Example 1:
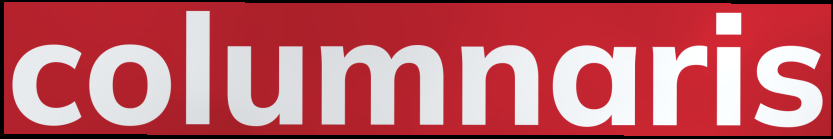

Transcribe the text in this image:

columnaris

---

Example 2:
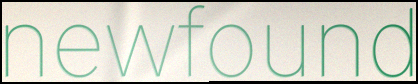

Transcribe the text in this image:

newfound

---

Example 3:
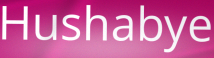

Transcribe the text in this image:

Hushabye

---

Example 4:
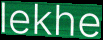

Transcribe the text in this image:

lekhe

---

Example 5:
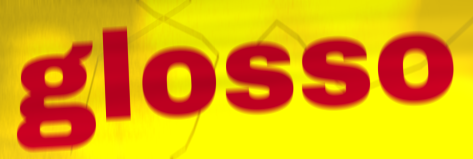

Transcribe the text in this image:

glosso